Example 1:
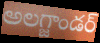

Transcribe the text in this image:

అలగ్జాండర్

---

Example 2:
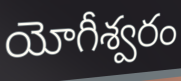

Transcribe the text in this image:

యోగీశ్వరం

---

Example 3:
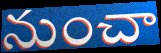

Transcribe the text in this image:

నుంచా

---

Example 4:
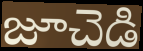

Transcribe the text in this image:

జూచెడి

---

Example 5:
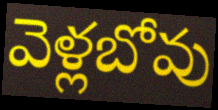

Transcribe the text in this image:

వెళ్లబోవు